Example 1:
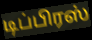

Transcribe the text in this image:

டிப்பிரஸ்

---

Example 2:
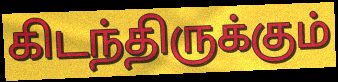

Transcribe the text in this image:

கிடந்திருக்கும்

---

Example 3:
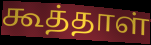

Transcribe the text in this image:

கூத்தாள்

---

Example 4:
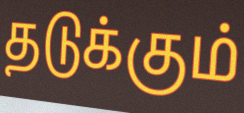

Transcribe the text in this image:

தடுக்கும்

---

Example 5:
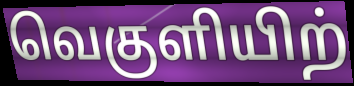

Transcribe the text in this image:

வெகுளியிற்